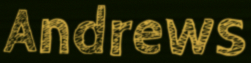
Andrews